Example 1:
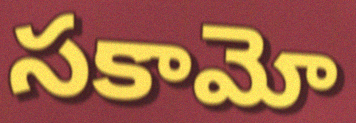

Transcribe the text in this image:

సకామో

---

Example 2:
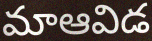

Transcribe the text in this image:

మాఆవిడ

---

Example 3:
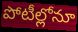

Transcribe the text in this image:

పోటీల్లోనూ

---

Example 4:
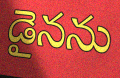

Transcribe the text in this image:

డైనను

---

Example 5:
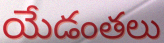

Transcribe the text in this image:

యేడంతలు